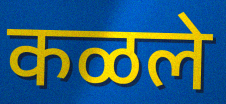
कळले